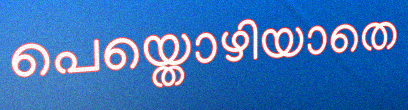
പെയ്തൊഴിയാതെ